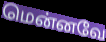
மென்னவே